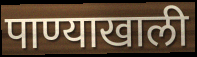
पाण्‍याखाली